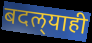
बदल्याही